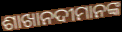
ଶାଖାନଦୀମାନଙ୍କ